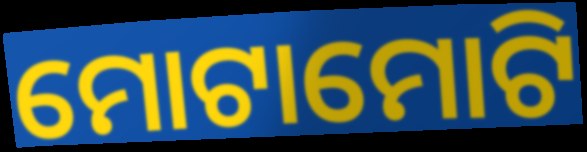
ମୋଟାମୋଟି